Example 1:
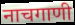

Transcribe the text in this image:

नाचगाणी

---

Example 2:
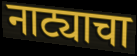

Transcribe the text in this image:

नाट्याचा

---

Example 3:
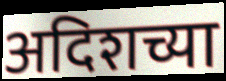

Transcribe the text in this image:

अदिशच्या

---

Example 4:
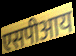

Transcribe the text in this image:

एसपीआय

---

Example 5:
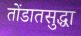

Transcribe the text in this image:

तोंडातसुद्धा